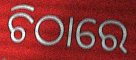
ଚିଠାରେ